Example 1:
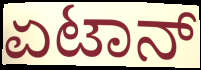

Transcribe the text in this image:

ಏಟಾನ್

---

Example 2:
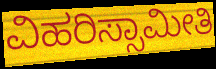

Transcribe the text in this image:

ವಿಹರಿಸ್ಸಾಮೀತಿ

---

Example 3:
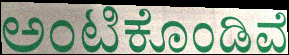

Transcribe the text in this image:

ಅಂಟಿಕೊಂಡಿವೆ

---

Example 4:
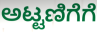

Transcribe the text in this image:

ಅಟ್ಟಣಿಗೆಗೆ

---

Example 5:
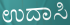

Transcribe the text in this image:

ಉದಾಸಿ